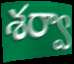
శర్వా